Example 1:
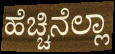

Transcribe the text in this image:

ಹೆಚ್ಚಿನೆಲ್ಲಾ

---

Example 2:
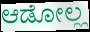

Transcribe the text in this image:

ಆಡೋಲ್ಲ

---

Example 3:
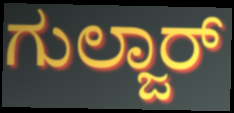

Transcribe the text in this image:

ಗುಲ್ಜಾರ್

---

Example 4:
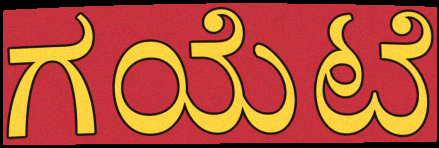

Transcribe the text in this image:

ಗಯೆಟೆ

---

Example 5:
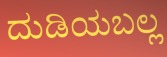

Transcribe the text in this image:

ದುಡಿಯಬಲ್ಲ